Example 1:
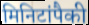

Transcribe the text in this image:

मिनिटांपैकी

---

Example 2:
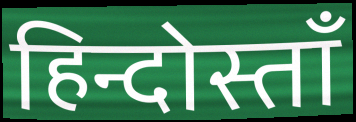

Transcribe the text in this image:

हिन्दोस्ताँ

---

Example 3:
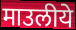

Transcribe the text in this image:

माउलीये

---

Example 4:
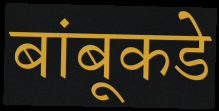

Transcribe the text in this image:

बांबूकडे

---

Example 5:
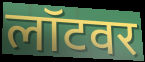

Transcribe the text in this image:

लॉटवर